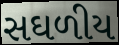
સઘળીય